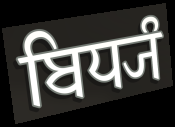
ਬਿਧ੍ਯੰ